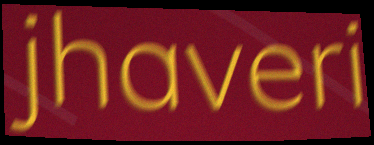
jhaveri